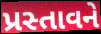
પ્રસ્તાવને